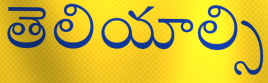
తెలియాల్సి